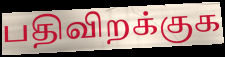
பதிவிறக்குக